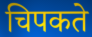
चिपकते